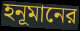
হনূমানের